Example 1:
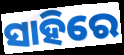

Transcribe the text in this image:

ସାହିରେ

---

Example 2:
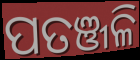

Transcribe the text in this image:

ପତଞ୍ଜଳି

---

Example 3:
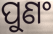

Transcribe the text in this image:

ପୁଣଂ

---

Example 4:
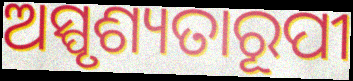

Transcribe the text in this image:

ଅସ୍ପୃଶ୍ୟତାରୂପୀ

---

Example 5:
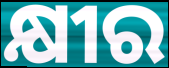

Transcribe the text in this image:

କ୍ଷୀର